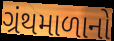
ગ્રંથમાળાનો